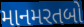
માનમરતબો